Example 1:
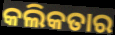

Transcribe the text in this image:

କଲିକତାର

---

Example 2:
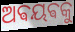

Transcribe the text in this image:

ଅଵୟଵକୁ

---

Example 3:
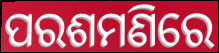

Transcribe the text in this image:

ପରଶମଣିରେ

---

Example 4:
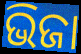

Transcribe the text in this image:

ଭିଜା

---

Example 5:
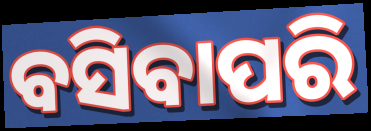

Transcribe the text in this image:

ବସିବାପରି